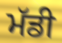
ਮੱਡੀ